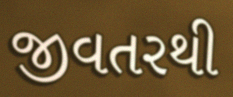
જીવતરથી